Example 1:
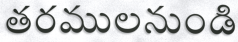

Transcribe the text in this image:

తరములనుండి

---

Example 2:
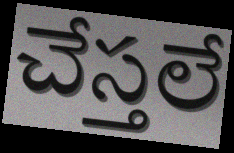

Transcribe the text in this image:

చేస్తలే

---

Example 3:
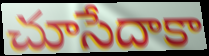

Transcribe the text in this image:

చూసేదాకా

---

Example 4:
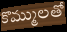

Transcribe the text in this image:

కొమ్ములతో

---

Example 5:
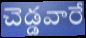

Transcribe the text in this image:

చెడ్డవారే